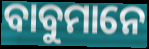
ବାବୁମାନେ